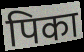
पिका